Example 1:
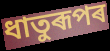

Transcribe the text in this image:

ধাতুৰূপৰ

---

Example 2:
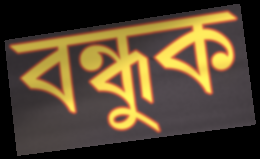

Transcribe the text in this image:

বন্ধুক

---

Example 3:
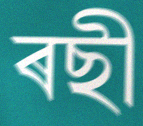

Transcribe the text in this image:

ৰছী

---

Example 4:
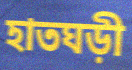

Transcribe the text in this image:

হাতঘড়ী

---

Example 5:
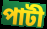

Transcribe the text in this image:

পাটী